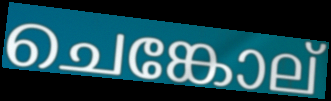
ചെങ്കോല്